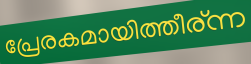
പ്രേരകമായിത്തീര്ന്ന